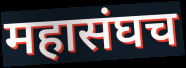
महासंघच